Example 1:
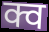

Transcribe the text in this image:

क्व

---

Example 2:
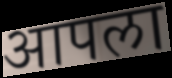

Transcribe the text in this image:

आपला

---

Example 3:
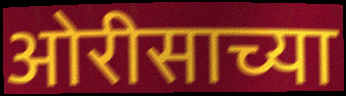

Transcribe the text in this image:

ओरीसाच्या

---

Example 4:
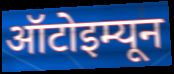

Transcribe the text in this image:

ऑटोइम्यून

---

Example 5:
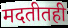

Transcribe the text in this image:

मदतीतही